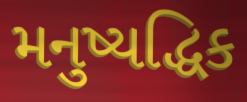
મનુષ્યદ્ધિક